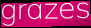
grazes